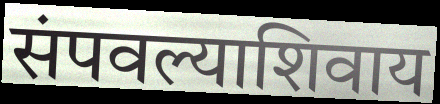
संपवल्याशिवाय